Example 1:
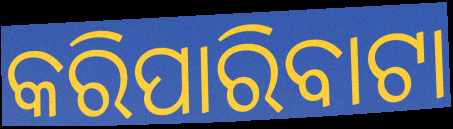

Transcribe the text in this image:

କରିପାରିବାଟା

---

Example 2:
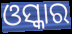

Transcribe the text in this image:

ଓସ୍କାର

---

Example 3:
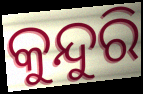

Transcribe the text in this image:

କୁନ୍ଦୁରି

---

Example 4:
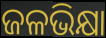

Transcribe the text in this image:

ଜଳଭିକ୍ଷା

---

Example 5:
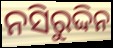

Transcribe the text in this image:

ନସିରୁଦ୍ଦିନ